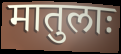
मातुलाः